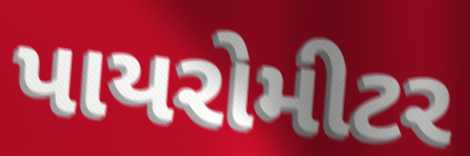
પાયરોમીટર